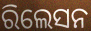
ରିଲେସନ